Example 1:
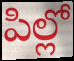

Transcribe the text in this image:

పిల్లో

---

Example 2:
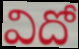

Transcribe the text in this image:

విదో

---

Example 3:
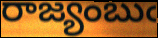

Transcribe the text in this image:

రాజ్యంబుఁ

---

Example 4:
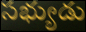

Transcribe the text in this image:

సభ్యుడు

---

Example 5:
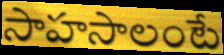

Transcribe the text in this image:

సాహసాలంటే